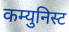
कम्युनिस्ट